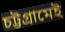
চট্টগ্রামেই